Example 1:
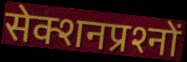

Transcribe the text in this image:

सेक्शनप्रश्नों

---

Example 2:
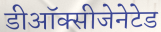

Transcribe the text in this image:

डीऑक्सीजेनेटेड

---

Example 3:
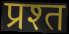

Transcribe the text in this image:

प्रश्त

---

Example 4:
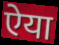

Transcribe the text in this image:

ऐया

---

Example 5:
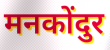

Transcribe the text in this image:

मनकोंदुर